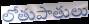
లోతుపాతులు